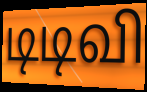
டிடிவி